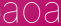
aoa